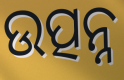
ଉତ୍ପନ୍ନ